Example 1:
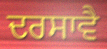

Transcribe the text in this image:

ਦਰਸਾਵੈ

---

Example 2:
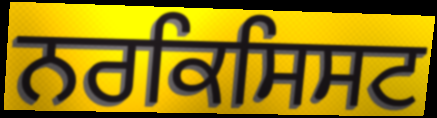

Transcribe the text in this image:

ਨਰਕਿਸਿਸਟ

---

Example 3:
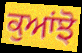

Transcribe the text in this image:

ਕੁਆਂਝੋ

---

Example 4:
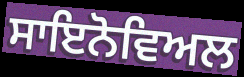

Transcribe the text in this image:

ਸਾਇਨੋਵਿਅਲ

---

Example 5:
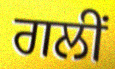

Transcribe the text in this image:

ਗਲੀਂ